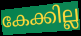
കേക്കില്ല